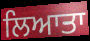
ਲਿਆਤਾ